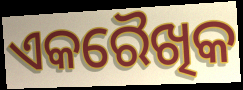
ଏକରୈଖିକ